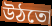
উঠতো